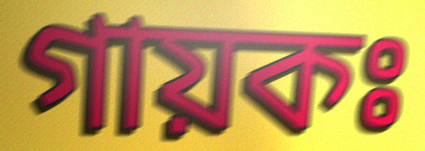
গায়কঃ